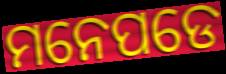
ମନେପଡେ